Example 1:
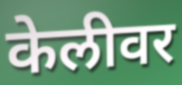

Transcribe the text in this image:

केलीवर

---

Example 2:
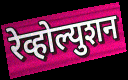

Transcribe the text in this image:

रेव्होल्युशन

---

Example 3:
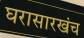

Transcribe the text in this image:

घरासारखंच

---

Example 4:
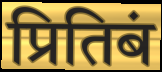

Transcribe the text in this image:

प्रितिबं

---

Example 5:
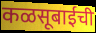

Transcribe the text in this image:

कळसूबाईची